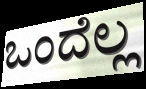
ಒಂದೆಲ್ಲ